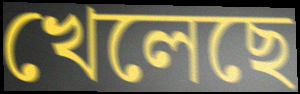
খেলেছে